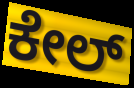
ಕೇಲ್